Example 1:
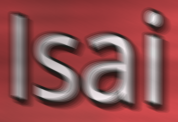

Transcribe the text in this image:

Isai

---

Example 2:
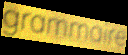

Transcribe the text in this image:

grammaire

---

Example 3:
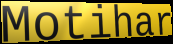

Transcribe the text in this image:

Motihar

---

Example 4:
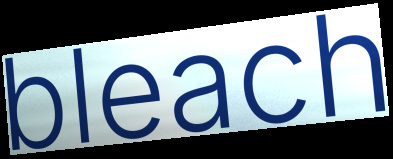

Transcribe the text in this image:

bleach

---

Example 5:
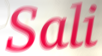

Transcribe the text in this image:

Sali